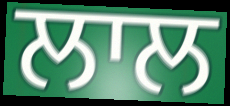
ਲਾਲ